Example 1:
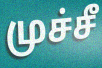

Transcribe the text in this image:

முச்சீ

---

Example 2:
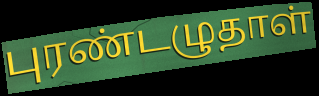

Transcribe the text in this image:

புரண்டழுதாள்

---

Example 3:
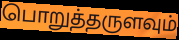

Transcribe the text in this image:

பொறுத்தருளவும்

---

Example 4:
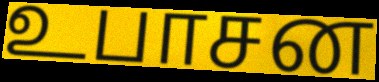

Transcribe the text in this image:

உபாசன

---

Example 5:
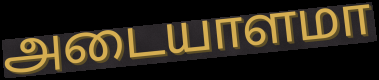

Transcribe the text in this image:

அடையாளமா